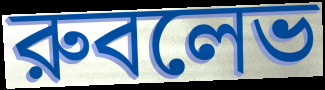
রুবলেভ